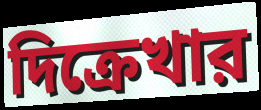
দিক্রেখার